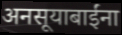
अनसूयाबाईंना